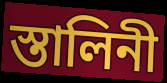
স্তালিনী